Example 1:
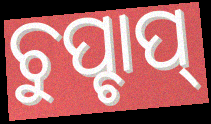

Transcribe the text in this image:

ଚୁପ୍ଚାପ୍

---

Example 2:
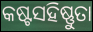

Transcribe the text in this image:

କଷ୍ଟସହିଷ୍ଣୁତା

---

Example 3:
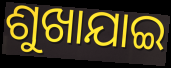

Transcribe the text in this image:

ଶୁଖାଯାଇ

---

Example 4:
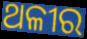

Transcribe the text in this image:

ଥଳୀର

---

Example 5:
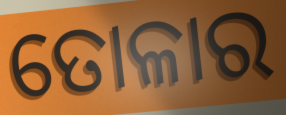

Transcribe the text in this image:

ତୋଳାର